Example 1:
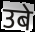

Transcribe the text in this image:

उबे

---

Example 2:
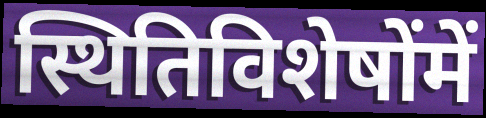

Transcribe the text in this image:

स्थितिविशेषोंमें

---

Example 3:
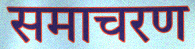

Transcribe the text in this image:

समाचरण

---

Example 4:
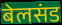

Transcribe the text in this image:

बेलसंड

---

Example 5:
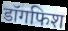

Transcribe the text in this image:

डॉगफिश